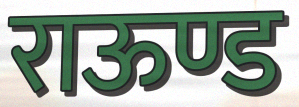
राऊण्ड